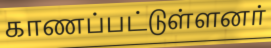
காணப்பட்டுள்ளனர்